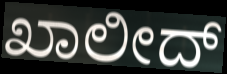
ಖಾಲೀದ್